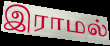
இராமல்